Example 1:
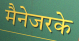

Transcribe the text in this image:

मैनेजरके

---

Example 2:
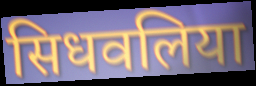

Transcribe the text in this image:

सिधवलिया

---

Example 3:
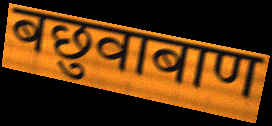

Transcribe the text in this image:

बछुवाबाण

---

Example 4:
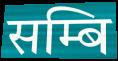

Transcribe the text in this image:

सम्बि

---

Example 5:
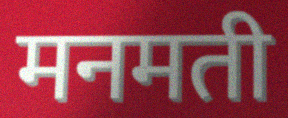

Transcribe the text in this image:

मनमती